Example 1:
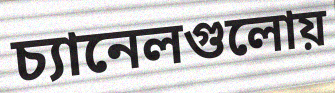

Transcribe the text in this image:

চ্যানেলগুলোয়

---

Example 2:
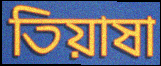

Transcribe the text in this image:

তিয়াষা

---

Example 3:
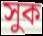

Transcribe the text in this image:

সুক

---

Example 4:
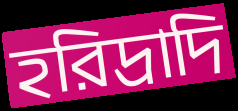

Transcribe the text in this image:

হরিদ্রাদি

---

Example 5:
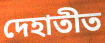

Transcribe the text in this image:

দেহাতীত